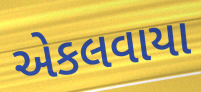
એકલવાયા